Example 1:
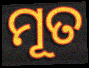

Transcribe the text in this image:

ମୂତ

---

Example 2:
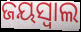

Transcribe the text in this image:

ଜୟସ୍ୱାଲ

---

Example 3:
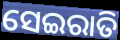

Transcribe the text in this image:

ସେଇରାତି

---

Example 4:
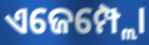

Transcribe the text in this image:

ଏଜେମ୍ପ୍ଲୋ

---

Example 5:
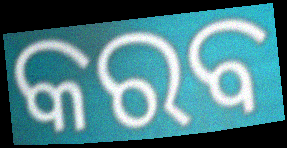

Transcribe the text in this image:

କରବ